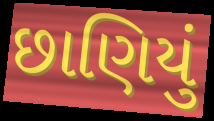
છાણિયું